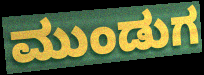
ಮುಂಡುಗ